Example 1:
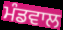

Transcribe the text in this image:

ਮੰਡਵਾਲ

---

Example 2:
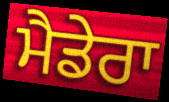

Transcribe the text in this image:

ਮੈਡੇਰਾ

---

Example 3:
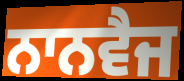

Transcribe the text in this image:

ਨਾਨਵੈਜ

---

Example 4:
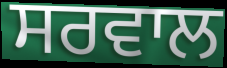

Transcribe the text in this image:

ਸਰਵਾਲ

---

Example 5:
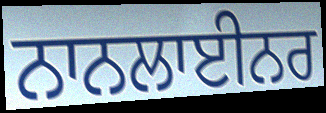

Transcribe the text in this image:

ਨਾਨਲਾਈਨਰ